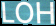
LOH